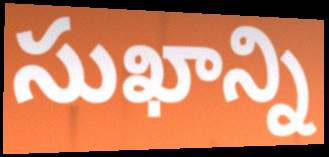
సుఖాన్ని